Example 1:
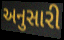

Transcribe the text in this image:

અનુસારી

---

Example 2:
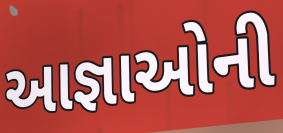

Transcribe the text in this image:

આજ્ઞાઓની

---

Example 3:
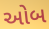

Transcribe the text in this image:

ઓબ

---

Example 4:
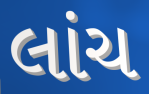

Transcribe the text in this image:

લાંચ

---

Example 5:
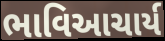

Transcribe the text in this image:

ભાવિઆચાર્ય